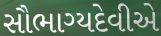
સૌભાગ્યદેવીએ